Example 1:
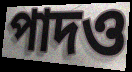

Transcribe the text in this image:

পাদও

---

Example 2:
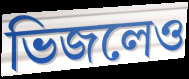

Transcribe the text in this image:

ভিজলেও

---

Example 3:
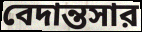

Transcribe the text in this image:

বেদান্তসার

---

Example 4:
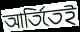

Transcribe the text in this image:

আর্তিতেই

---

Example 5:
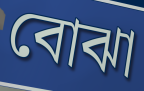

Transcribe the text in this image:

বোঝা